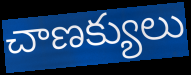
చాణక్యులు